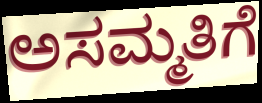
ಅಸಮ್ಮತಿಗೆ